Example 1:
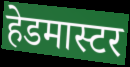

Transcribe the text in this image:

हेडमास्टर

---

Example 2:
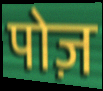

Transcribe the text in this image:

पोज़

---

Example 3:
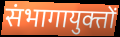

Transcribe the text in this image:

संभागायुक्तों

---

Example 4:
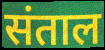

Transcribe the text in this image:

संताल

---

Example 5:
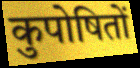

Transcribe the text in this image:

कुपोषितों